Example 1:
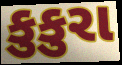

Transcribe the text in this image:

કુકુરા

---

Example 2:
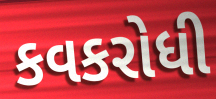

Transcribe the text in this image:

કવકરોધી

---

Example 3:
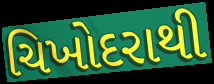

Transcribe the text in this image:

ચિખોદરાથી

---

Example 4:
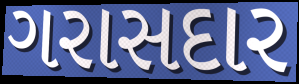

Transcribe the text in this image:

ગરાસદાર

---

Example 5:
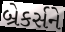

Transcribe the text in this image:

બ્રેકર્સને